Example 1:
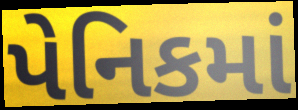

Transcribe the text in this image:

પેનિકમાં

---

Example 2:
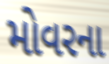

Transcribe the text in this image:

મોવરના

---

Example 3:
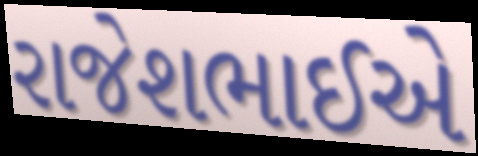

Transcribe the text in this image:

રાજેશભાઈએ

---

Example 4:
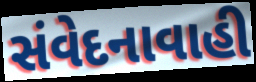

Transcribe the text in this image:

સંવેદનાવાહી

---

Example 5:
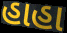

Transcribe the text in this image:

હાહા